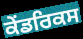
ਕੇਂਡਰਿਕਸ